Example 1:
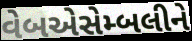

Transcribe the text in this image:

વેબએસેમ્બલીને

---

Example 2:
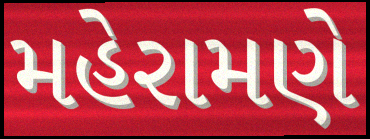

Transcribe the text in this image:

મહેરામણે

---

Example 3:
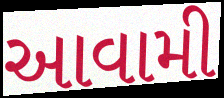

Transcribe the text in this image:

આવામી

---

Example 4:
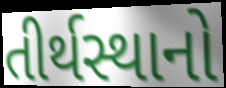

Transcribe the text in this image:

તીર્થસ્થાનો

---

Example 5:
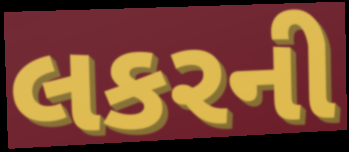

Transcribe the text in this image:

લકરની